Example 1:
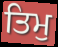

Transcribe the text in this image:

ਤਿਮੁ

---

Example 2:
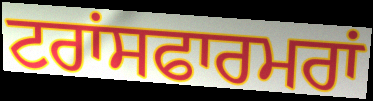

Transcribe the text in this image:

ਟਰਾਂਸਫਾਰਮਰਾਂ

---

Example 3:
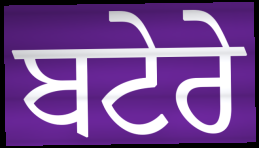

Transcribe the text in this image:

ਬਟੇਰੇ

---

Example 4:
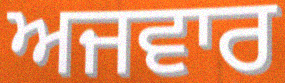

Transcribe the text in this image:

ਅਜਵਾਰ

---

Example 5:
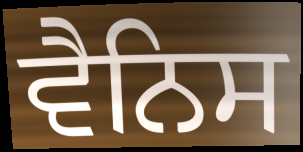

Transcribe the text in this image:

ਵੈਨਿਸ